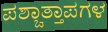
ಪಶ್ಚಾತ್ತಾಪಗಳ